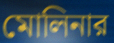
মোলিনার